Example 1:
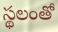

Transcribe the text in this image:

స్థలంతో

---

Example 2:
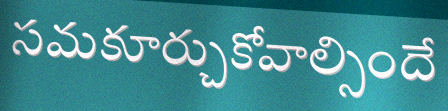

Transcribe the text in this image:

సమకూర్చుకోవాల్సిందే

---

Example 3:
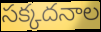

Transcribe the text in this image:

సక్కదనాల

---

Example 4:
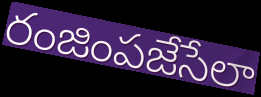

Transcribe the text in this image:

రంజింపజేసేలా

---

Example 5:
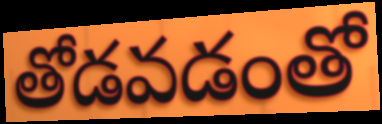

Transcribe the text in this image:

తోడవడంతో